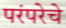
परंपरेचे